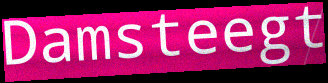
Damsteegt